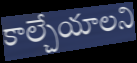
కాల్చేయాలని